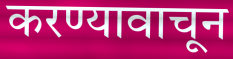
करण्यावाचून